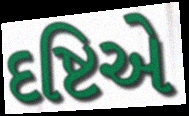
દષ્ટિએ